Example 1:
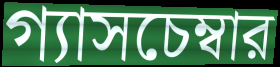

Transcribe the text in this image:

গ্যাসচেম্বার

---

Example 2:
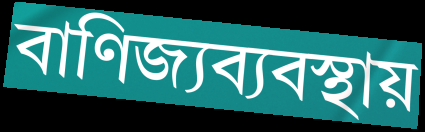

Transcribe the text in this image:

বাণিজ্যব্যবস্থায়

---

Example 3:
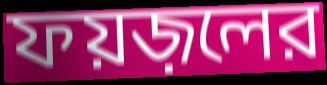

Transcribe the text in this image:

ফয়জ়লের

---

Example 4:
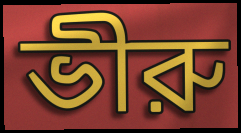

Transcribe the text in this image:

ভীরু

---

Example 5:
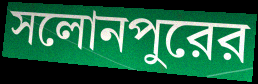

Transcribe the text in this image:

সলোনপুরের